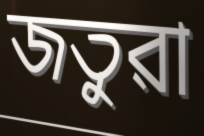
জতুৱা